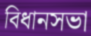
বিধানসভা